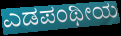
ಎಡಪಂಥೀಯ